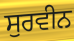
ਸੁਰਵੀਨ